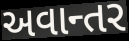
અવાન્તર